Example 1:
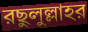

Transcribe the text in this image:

রছুলুল্লাহর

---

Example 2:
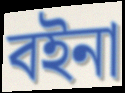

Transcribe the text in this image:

বইনা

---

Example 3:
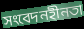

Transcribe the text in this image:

সংবেদনহীনতা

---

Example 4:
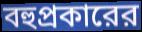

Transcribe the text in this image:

বহুপ্রকারের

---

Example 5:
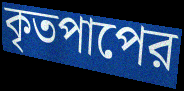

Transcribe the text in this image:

কৃতপাপের